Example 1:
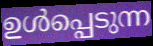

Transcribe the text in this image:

ഉൾപ്പെടുന്ന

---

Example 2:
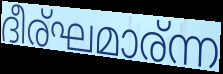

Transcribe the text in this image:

ദീര്ഘമാര്ന്ന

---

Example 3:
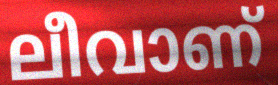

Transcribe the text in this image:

ലീവാണ്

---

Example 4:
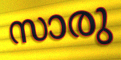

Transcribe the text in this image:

സാരു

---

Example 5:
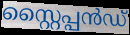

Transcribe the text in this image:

സ്റ്റൈപ്പൻഡ്